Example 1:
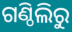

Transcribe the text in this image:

ଗଣ୍ଠିଲିରୁ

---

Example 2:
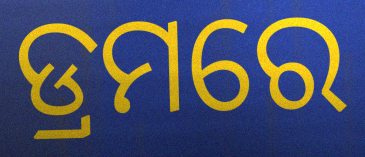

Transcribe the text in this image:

ଡ୍ରମରେ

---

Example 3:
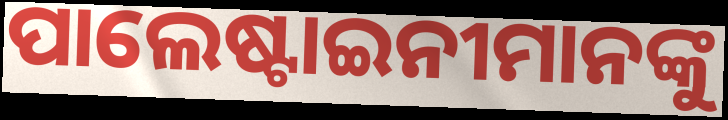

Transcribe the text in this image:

ପାଲେଷ୍ଟାଇନୀମାନଙ୍କୁ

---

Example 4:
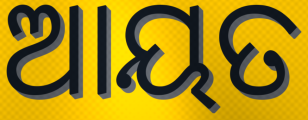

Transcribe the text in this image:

ଆୟତ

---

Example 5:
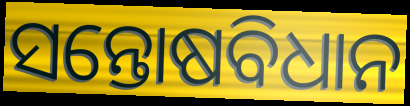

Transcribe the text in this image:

ସନ୍ତୋଷବିଧାନ